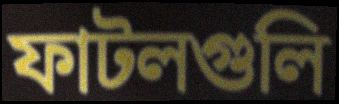
ফাটলগুলি